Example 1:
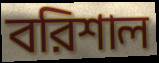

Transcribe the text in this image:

বরিশাল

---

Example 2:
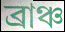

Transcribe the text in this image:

ব্রাঞ্চ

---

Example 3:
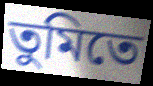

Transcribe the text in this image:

তুমিতে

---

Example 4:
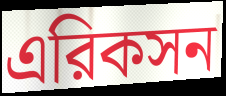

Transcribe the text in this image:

এরিকসন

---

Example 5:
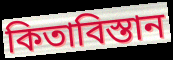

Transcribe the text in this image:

কিতাবিস্তান